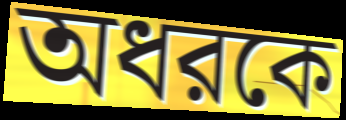
অধরকে